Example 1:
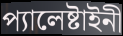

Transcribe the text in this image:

প্যালেষ্টাইনী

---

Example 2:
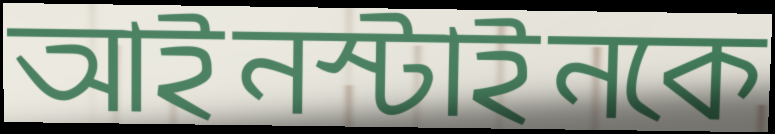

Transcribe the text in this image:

আইনস্টাইনকে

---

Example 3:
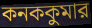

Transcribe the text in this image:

কনককুমার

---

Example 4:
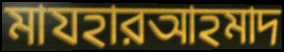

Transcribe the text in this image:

মাযহারআহমাদ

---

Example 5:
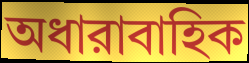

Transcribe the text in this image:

অধারাবাহিক